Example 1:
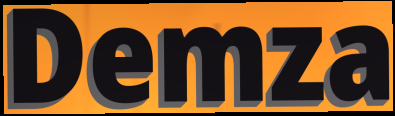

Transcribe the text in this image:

Demza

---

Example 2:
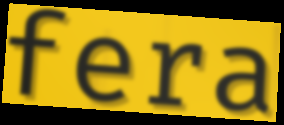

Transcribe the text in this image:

fera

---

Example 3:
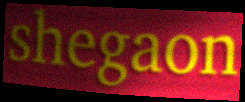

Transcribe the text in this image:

shegaon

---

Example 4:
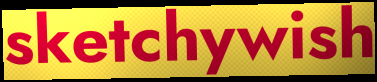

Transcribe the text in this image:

sketchywish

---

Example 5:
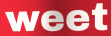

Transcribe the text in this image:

weet